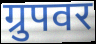
ग्रुपवर